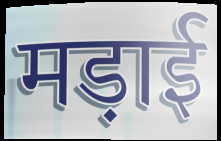
मड़ाई